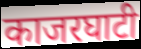
काजरघाटी